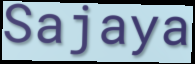
Sajaya